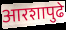
आरशापुढे